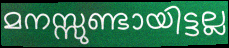
മനസ്സുണ്ടായിട്ടല്ല